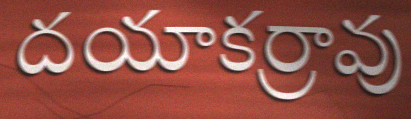
దయాకర్రావు